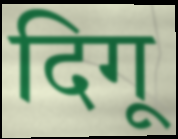
दिगू